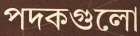
পদকগুলো